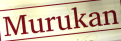
Murukan